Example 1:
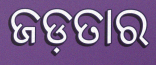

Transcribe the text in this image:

ଜଡ଼ତାର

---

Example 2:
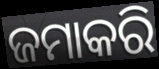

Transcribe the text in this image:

ଜମାକରି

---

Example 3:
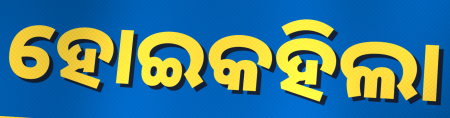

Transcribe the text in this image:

ହୋଇକହିଲା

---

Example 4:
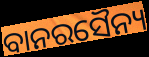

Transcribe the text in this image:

ବାନରସୈନ୍ୟ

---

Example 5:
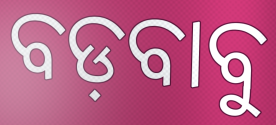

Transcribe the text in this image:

ବଡ଼ବାବୁ